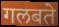
गलबते